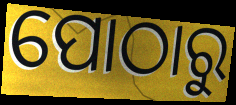
ପୋଠାରୁ